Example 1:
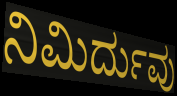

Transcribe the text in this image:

ನಿಮಿರ್ದುವು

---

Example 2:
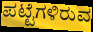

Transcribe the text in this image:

ಪಟ್ಟೆಗಳಿರುವ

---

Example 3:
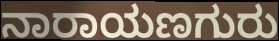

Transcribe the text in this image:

ನಾರಾಯಣಗುರು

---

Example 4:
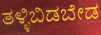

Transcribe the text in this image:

ತಳ್ಳಿಬಿಡಬೇಡ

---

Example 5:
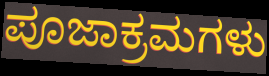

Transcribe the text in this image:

ಪೂಜಾಕ್ರಮಗಳು